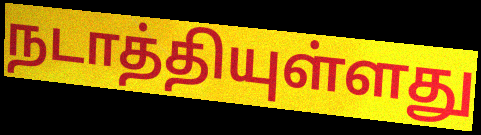
நடாத்தியுள்ளது